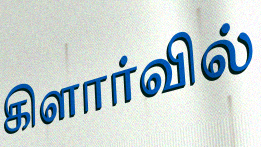
கிளார்வில்